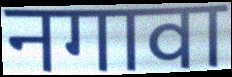
नगावा